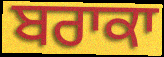
ਬਰਾਕਾ